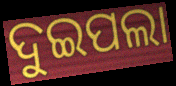
ଦୁଇପଲା